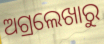
ଅଗ୍ରଲେଖାରୁ